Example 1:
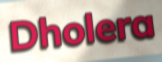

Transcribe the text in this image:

Dholera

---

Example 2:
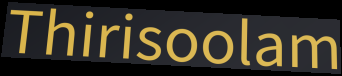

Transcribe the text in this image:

Thirisoolam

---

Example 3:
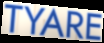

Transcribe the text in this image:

TYARE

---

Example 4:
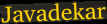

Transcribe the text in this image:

Javadekar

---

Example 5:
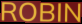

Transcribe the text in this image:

ROBIN